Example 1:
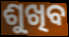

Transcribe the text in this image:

ଶୁଖିବ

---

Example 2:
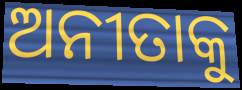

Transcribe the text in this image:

ଅନୀତାକୁ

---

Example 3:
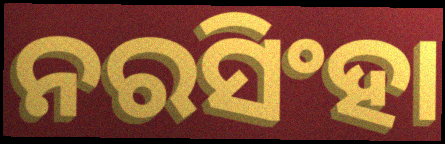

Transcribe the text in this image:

ନରସିଂହା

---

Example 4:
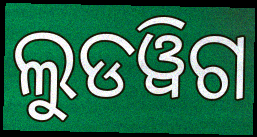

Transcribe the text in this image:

ଲୁଡୱିଗ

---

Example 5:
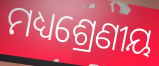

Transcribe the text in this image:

ମଧ୍ୟଶ୍ରେଣୀୟ